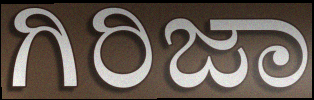
ಗಿರಿಜಾ